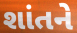
શાંતને